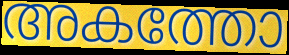
അകത്തോ